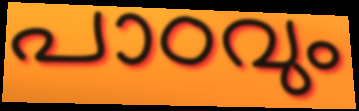
പാഠവും